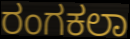
ರಂಗಕಲಾ